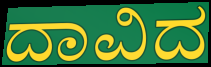
ದಾವಿದ